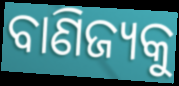
ବାଣିଜ୍ୟକୁ